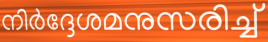
നിർദ്ദേശമനുസരിച്ച്